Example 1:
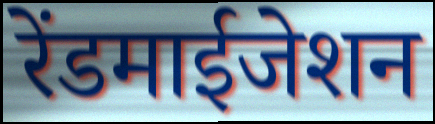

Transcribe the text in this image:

रेंडमाईजेशन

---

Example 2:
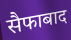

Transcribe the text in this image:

सैफाबाद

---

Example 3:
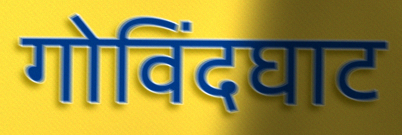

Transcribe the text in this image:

गोविंदघाट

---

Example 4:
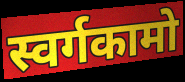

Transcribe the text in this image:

स्वर्गकामो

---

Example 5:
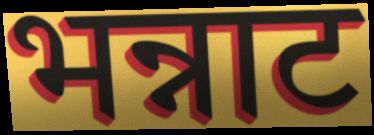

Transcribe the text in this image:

भन्नाट